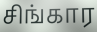
சிங்கார